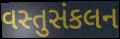
વસ્તુસંકલન